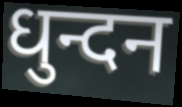
धुन्दन